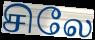
சிலே